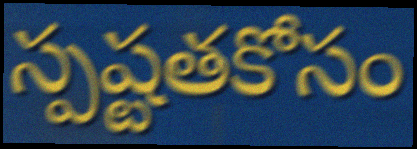
స్పష్టతకోసం